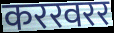
कररवरर